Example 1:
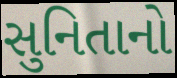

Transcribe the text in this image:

સુનિતાનો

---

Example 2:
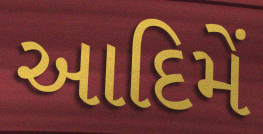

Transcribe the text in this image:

આદિમેં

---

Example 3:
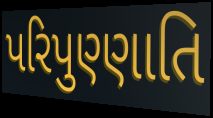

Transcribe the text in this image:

પરિપુણ્ણાતિ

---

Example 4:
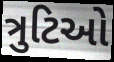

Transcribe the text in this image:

ત્રુટિઓ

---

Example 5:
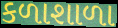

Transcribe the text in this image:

કળાશાળા